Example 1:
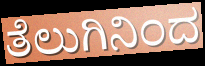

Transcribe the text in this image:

ತೆಲುಗಿನಿಂದ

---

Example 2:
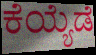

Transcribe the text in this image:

ಕೆಯ್ಯೆಡೆ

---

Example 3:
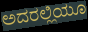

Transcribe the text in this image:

ಅದರಲ್ಲಿಯೂ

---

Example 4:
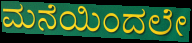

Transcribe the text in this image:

ಮನೆಯಿಂದಲೇ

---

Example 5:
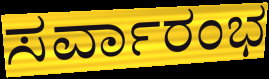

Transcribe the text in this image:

ಸರ್ವಾರಂಭ